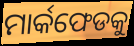
ମାର୍କଫେଡକୁ